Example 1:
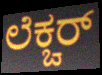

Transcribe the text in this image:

ಲೆಕ್ಚರ್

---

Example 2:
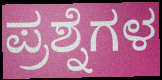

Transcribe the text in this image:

ಪ್ರಶ್ನೆಗಳ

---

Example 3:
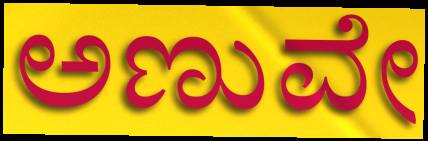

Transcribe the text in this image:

ಅಣುವೇ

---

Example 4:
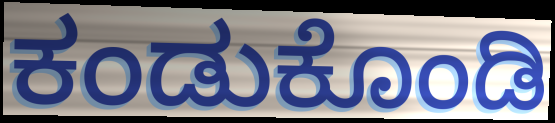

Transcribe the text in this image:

ಕಂಡುಕೊಂಡಿ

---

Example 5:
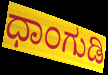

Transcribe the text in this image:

ಧಾಂಗುಡಿ